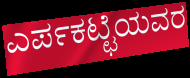
ಎರ್ಪಕಟ್ಟೆಯವರ